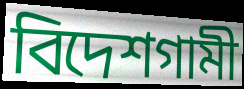
বিদেশগামী